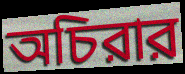
অচিরার